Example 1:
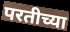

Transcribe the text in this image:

परतीच्या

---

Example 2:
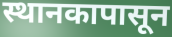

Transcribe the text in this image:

स्थानकापासून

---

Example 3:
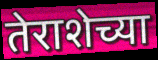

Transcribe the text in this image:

तेराशेच्या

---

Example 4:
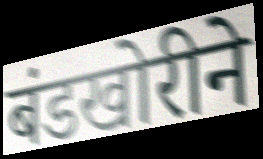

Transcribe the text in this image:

बंडखोरीने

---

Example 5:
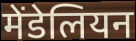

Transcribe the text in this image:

मेंडेलियन